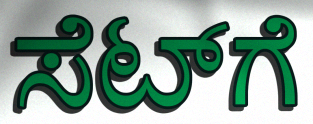
ಸೆಟ್‌ಗೆ